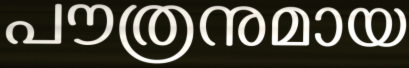
പൗത്രനുമായ